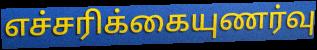
எச்சரிக்கையுணர்வு